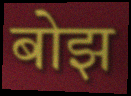
बोझ